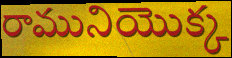
రామునియొక్క